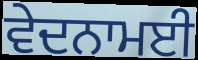
ਵੇਦਨਾਮਈ